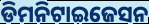
ଡିମନିଟାଇଜେସନ